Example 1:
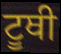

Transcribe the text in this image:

ਟੂਥੀ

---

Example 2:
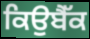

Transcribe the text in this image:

ਕਿਉਬੈੱਕ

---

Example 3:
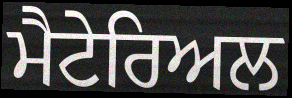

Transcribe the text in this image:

ਮੈਟੇਰਿਅਲ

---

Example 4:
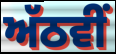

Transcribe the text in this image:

ਅੱਠਵੀੰ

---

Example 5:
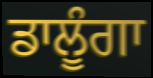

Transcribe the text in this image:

ਡਾਲੂੰਗਾ